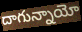
దాగున్నాయో